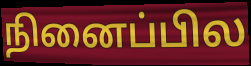
நினைப்பில